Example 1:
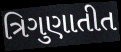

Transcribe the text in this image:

ત્રિગુણાતીત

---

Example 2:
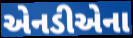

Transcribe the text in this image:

એનડીએના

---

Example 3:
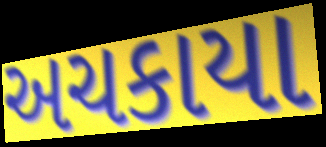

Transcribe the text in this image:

અચકાયા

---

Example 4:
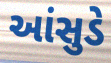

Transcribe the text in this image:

આંસુડે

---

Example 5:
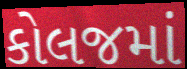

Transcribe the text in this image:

કોલજમાં